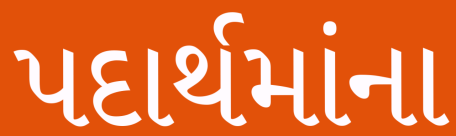
પદાર્થમાંના